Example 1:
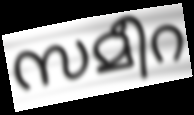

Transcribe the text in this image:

സമീറ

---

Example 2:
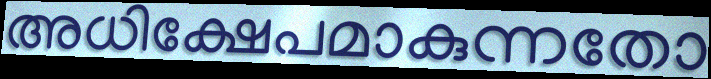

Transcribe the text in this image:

അധിക്ഷേപമാകുന്നതോ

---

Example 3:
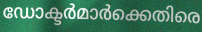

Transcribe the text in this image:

ഡോക്ടർമാർക്കെതിരെ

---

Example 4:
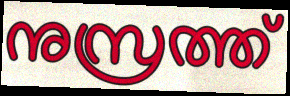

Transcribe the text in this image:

നുസ്രത്ത്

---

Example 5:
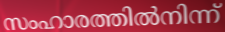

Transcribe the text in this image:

സംഹാരത്തിൽനിന്ന്